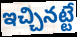
ఇచ్చినట్టే